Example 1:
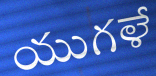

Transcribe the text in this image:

యుగళే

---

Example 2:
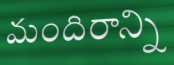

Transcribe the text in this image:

మందిరాన్ని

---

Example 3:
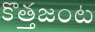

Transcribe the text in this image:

కొత్తజంట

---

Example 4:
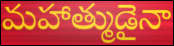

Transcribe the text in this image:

మహాత్ముడైనా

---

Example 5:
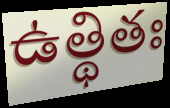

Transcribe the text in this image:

ఉత్థితః